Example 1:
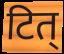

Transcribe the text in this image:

टित्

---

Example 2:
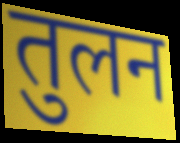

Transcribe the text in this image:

तुलन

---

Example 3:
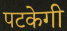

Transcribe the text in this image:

पटकेगी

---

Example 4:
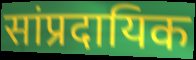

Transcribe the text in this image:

सांप्रदायिक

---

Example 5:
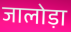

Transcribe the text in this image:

जालोड़ा